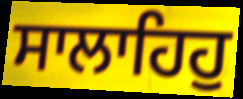
ਸਾਲਾਹਿਹੁ